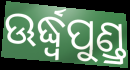
ଊର୍ଦ୍ଧ୍ୱପୁଣ୍ଡ୍ର